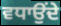
ਵਧਾਉਂਦੇ